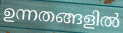
ഉന്നതങ്ങളിൽ